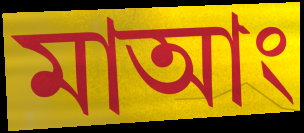
মাআং